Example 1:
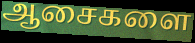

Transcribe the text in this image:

ஆசைகளை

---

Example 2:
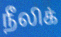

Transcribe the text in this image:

நீலிக்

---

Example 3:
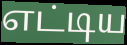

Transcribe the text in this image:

எட்டிய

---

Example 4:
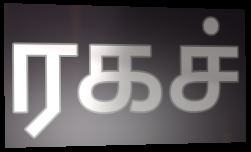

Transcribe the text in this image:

ரகச்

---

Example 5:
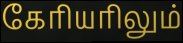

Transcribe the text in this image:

கேரியரிலும்